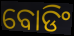
ବୋଡିଂ